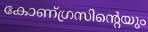
കോണ്ഗ്രസിന്റെയും